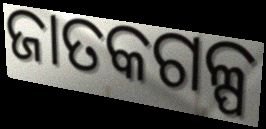
ଜାତକଗଳ୍ପ